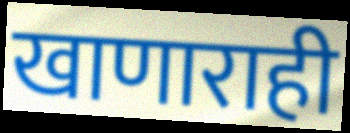
खाणाराही